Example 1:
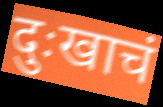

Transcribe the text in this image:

दुःखाचं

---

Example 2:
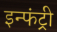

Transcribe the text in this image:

इन्फंट्री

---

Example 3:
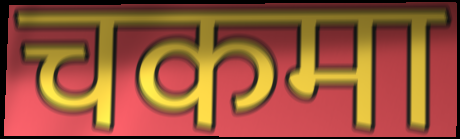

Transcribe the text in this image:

चकमा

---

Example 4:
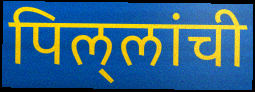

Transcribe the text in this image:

पिल्लांची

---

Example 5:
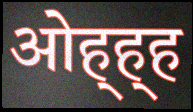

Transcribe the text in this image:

ओह्ह्ह